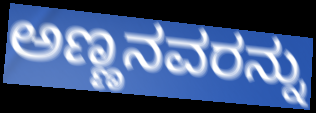
ಅಣ್ಣನವರನ್ನು